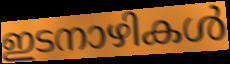
ഇടനാഴികൾ